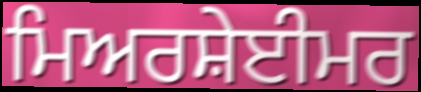
ਮਿਅਰਸ਼ੇਈਮਰ